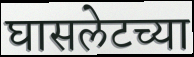
घासलेटच्या